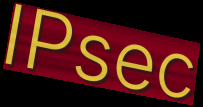
IPsec